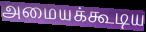
அமையக்கூடிய